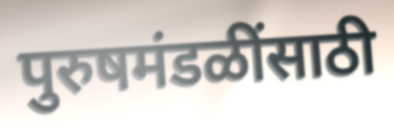
पुरुषमंडळींसाठी